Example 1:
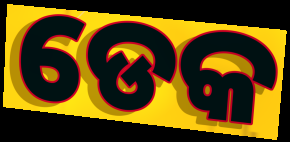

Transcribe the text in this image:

ଡେକ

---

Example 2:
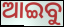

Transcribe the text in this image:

ଆଇବୁ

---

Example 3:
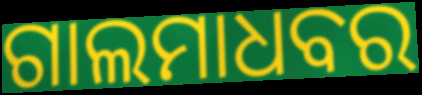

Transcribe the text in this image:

ଗାଲମାଧବର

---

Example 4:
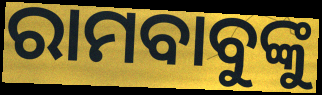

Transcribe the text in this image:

ରାମବାବୁଙ୍କୁ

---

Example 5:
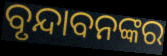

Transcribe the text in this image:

ବୃନ୍ଦାବନଙ୍କର